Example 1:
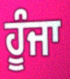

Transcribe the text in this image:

ਹੂੰਜਾ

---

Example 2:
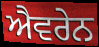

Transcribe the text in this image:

ਐਵਰੇਨ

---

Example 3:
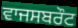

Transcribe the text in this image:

ਵਾਜਸਬਰੌਟ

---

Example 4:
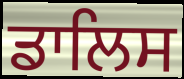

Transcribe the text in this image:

ਡਾਲਿਸ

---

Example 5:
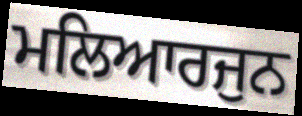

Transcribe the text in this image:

ਮਲਿਆਰਜੁਨ